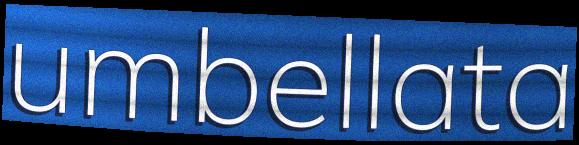
umbellata